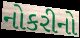
નોકરીનો